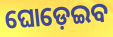
ଘୋଡ଼େଇବ